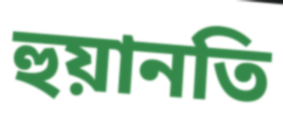
হুয়ানতি